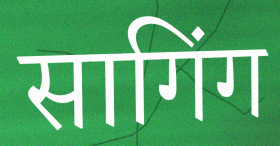
सागिंग